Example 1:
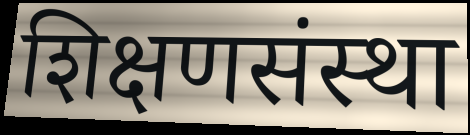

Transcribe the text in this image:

शिक्षणसंस्था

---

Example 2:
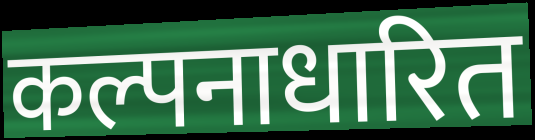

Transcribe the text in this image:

कल्पनाधारित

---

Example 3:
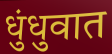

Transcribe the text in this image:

धुंधुवात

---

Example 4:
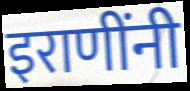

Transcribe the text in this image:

इराणींनी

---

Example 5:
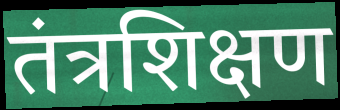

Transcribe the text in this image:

तंत्रशिक्षण